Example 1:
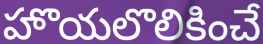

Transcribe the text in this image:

హొయలొలికించే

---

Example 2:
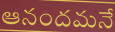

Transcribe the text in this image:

ఆనందమనే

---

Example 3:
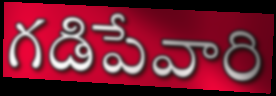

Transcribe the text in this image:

గడిపేవారి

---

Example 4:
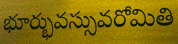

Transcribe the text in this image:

భూర్భువస్సువరోమితి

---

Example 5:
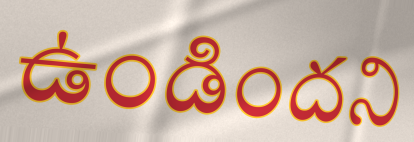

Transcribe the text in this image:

ఉండిందని